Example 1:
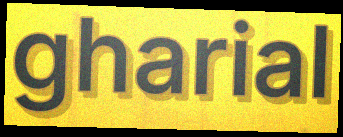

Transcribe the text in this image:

gharial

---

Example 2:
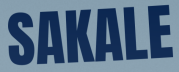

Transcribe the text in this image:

SAKALE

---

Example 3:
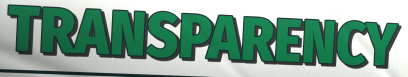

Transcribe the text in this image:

TRANSPARENCY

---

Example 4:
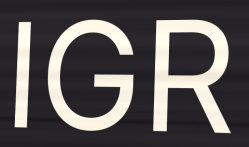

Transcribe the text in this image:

IGR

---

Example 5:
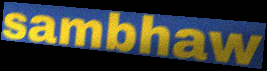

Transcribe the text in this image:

sambhaw